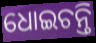
ଧୋଇଚନ୍ତି